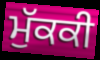
ਮੁੱਕਕੀ